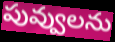
పువ్వులను